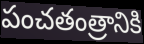
పంచతంత్రానికి